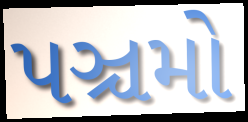
પઞ્ચમો